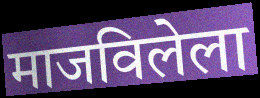
माजविलेला